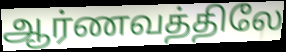
ஆர்ணவத்திலே